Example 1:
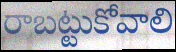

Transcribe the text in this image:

రాబట్టుకోవాలి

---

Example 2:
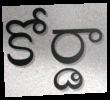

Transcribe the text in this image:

కోర్డా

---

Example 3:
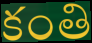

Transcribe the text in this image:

కంతి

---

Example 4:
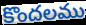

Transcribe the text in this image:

కొందలము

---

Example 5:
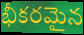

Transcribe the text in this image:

భీకరమైన